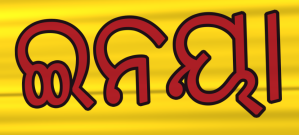
ଇନୟା